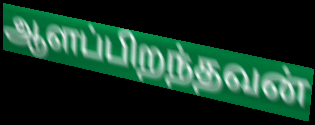
ஆளப்பிறந்தவன்